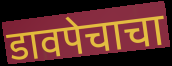
डावपेचाचा